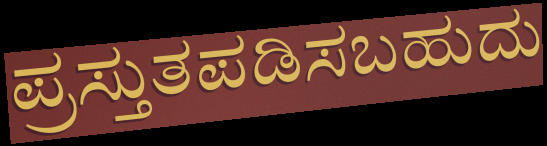
ಪ್ರಸ್ತುತಪಡಿಸಬಹುದು